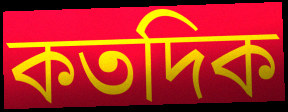
কতদিক